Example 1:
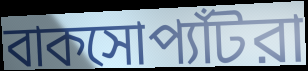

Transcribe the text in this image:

বাকসোপ্যাঁটরা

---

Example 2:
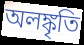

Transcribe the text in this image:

অলঙ্কৃতি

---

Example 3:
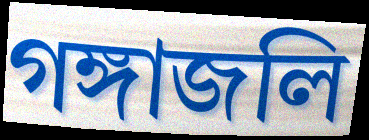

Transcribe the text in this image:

গঙ্গাজলি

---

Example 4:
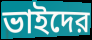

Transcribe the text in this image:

ভাইদের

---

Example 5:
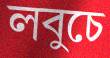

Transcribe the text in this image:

লবুচে